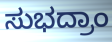
ಸುಭದ್ರಾಂ